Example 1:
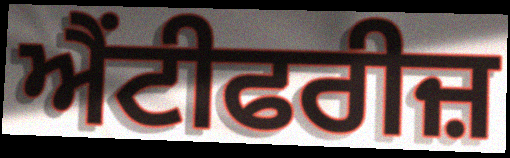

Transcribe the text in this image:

ਐਂਟੀਫਰੀਜ਼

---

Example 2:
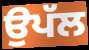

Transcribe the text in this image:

ਉਪੱਲ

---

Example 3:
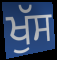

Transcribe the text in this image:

ਖੁੱਸ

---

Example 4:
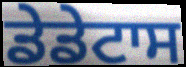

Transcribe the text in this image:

ਡੇਡੇਟਾਸ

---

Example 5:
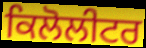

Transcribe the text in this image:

ਕਿਲੋਲੀਟਰ